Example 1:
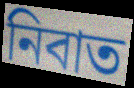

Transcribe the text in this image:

নিবাত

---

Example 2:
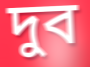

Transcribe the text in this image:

দুব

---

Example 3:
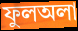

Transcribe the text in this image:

ফুলঅলা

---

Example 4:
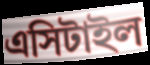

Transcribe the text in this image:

এসিটাইল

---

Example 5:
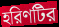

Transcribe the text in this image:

হরিণটির